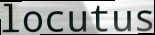
locutus